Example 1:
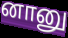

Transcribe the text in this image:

னானு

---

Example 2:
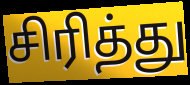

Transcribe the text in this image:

சிரித்து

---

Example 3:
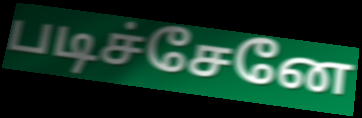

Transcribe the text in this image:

படிச்சேனே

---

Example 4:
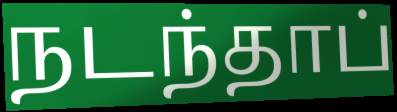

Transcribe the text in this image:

நடந்தாப்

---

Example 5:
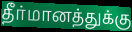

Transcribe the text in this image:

தீர்மானத்துக்கு